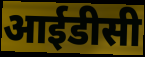
आईडीसी